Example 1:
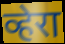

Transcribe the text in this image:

व्हेरा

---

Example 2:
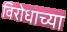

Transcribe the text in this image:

विरोधाच्या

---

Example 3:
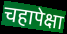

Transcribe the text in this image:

चहापेक्षा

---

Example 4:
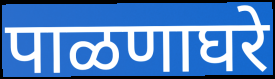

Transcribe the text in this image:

पाळणाघरे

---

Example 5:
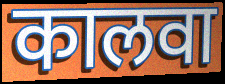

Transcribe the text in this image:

कालवा